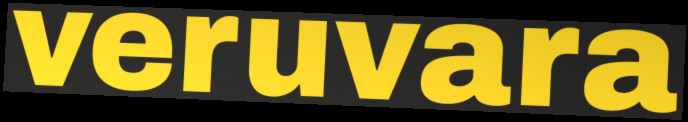
veruvara